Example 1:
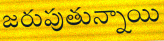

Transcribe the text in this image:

జరుపుతున్నాయి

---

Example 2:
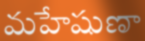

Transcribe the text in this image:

మహేషుణా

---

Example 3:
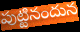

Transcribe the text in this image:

పుట్టినందున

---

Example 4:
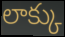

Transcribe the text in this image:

లాక్కు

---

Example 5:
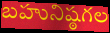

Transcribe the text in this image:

బహునిష్ఠగల